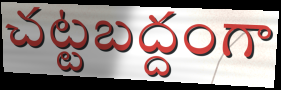
చట్టబద్దంగా